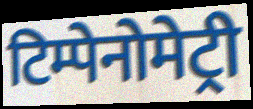
टिम्पेनोमेट्री